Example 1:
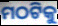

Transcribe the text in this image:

ମଠଟିକୁ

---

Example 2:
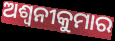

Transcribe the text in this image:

ଅଶ୍ୱନୀକୁମାର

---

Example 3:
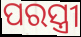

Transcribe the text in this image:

ପରସ୍ତ୍ରୀ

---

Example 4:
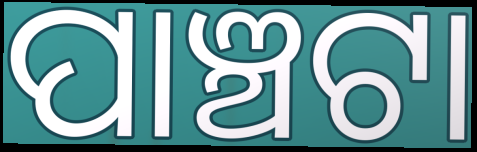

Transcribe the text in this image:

ପାଞ୍ଚଟା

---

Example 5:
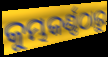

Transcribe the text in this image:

କୁମ୍ଭକର୍ଣ୍ଣଠାରୁ